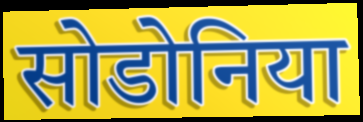
सोडोनिया